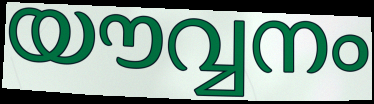
യൗവ്വനം